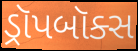
ડ્રૉપબૉક્સ